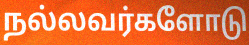
நல்லவர்களோடு